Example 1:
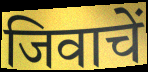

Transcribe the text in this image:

जिवाचें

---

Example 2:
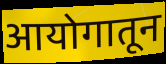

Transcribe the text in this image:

आयोगातून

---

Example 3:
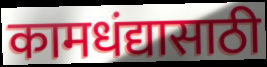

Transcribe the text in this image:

कामधंद्यासाठी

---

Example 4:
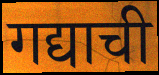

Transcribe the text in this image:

गद्याची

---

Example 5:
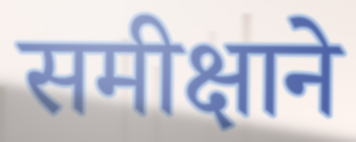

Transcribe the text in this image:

समीक्षाने